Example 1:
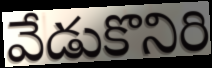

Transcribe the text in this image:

వేడుకొనిరి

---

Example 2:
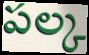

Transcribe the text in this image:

పల్క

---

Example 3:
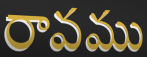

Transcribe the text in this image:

రావము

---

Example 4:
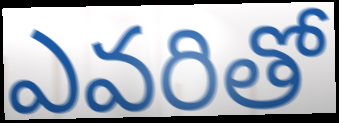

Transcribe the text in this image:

ఎవరితో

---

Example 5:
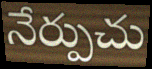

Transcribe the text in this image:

నేర్పుచు